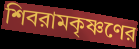
শিবরামকৃষ্ণণের